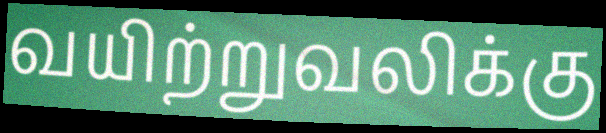
வயிற்றுவலிக்கு